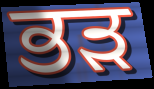
ਭੜ